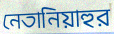
নেতানিয়াহুর